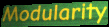
Modularity